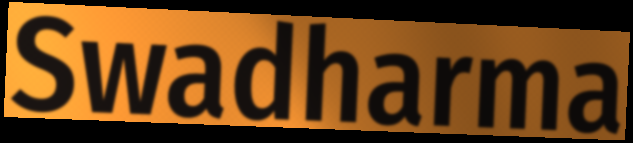
Swadharma